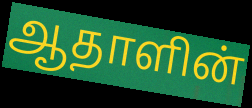
ஆதாளின்